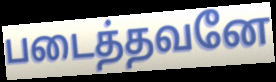
படைத்தவனே